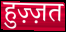
हुज़्ज़त